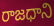
రాజధాని